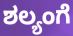
ಶಲ್ಯಂಗೆ